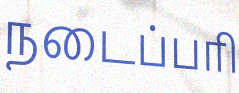
நடைப்பரி